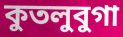
কুতলুবুগা